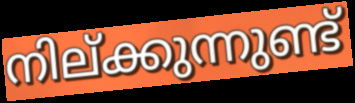
നില്ക്കുന്നുണ്ട്